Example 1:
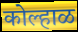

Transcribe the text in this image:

कोल्हाळ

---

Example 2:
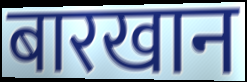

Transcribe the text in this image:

बारखान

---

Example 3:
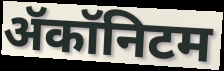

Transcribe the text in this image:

ॲकॉनिटम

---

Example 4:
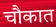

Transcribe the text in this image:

चौकात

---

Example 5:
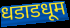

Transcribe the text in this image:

धडाडधूम